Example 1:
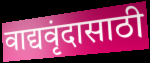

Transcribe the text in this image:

वाद्यवृंदासाठी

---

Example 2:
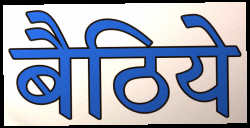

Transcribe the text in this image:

बैठिये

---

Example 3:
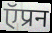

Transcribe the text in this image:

ऍप्रन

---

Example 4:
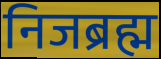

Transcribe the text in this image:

निजब्रह्म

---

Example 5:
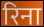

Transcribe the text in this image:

रिना